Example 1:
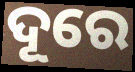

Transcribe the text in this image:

ଦୂରେ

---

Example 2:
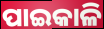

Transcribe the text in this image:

ପାଇକାଳି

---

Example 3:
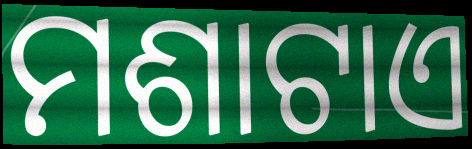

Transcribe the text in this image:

ମଶାଟାଏ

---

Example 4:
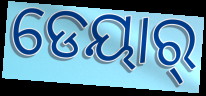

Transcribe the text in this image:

ଡେୟାର୍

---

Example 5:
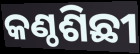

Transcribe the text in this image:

କଣ୍ଠଶିଛୀ